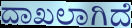
ದಾಖಲಾಗಿದೆ